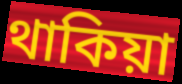
থাকিয়া